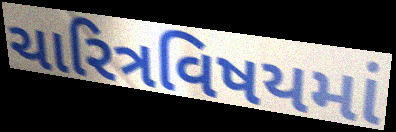
ચારિત્રવિષયમાં